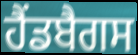
ਹੈਂਡਬੈਗਸ